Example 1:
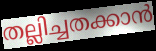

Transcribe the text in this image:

തല്ലിച്ചതക്കാൻ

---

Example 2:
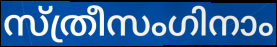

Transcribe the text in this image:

സ്ത്രീസംഗിനാം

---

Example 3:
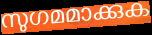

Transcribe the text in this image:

സുഗമമാക്കുക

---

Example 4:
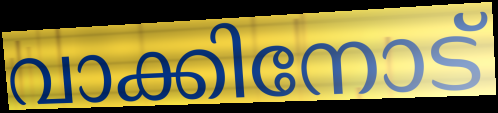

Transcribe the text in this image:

വാക്കിനോട്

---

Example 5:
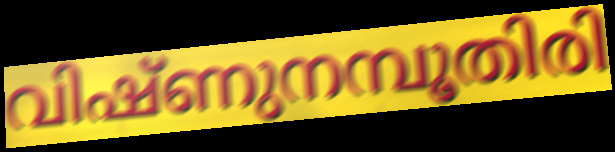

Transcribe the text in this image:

വിഷ്ണുനമ്പൂതിരി